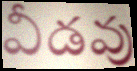
వీడవు